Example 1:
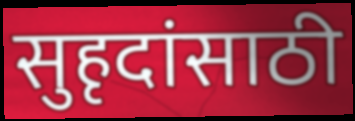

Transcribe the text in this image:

सुहृदांसाठी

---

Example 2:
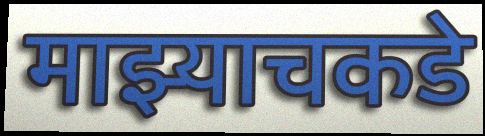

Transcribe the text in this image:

माझ्याचकडे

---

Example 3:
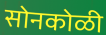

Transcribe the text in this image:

सोनकोळी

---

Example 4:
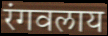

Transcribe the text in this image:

रंगवलाय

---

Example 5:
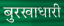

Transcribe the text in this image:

बुरखाधारी